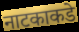
नाटकाकडे